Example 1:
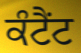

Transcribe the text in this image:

ਕੰਟੈਂਟ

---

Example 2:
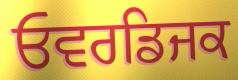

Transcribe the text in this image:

ਓਵਰਡਿਜਕ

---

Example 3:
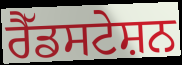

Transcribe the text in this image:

ਰੈੱਡਸਟੇਸ਼ਨ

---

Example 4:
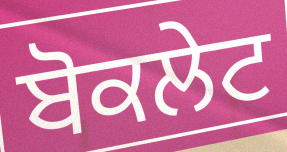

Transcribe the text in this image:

ਬੋਕਲੇਟ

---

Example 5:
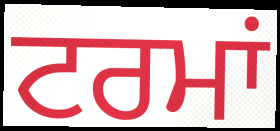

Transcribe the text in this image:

ਟਰਮਾਂ